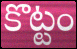
కొట్టం